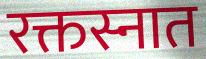
रक्तस्नात